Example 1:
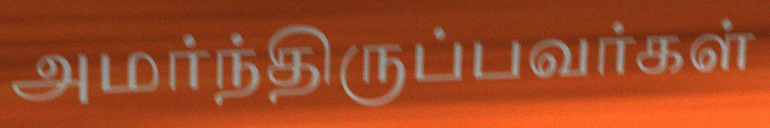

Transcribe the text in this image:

அமர்ந்திருப்பவர்கள்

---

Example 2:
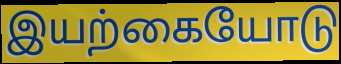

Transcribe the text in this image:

இயற்கையோடு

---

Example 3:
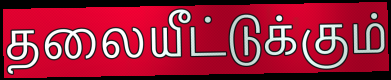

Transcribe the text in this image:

தலையீட்டுக்கும்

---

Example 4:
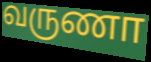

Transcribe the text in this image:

வருணா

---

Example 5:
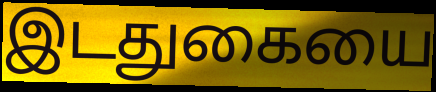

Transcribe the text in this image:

இடதுகையை